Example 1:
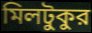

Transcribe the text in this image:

মিলটুকুর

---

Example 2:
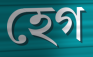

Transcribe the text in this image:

হেগ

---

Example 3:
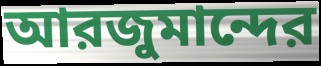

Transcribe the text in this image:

আরজুমান্দের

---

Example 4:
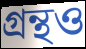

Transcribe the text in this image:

গ্রন্থও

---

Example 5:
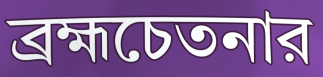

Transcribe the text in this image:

ব্রহ্মচেতনার